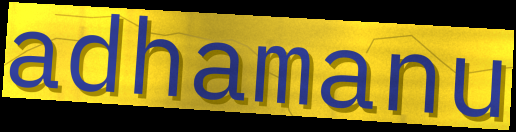
adhamanu